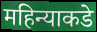
महिन्याकडे